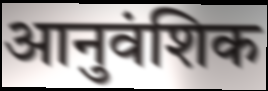
आनुवंशिक